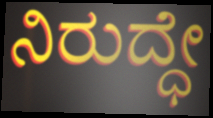
ನಿರುದ್ಧೇ